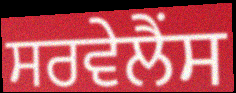
ਸਰਵੇਲੈਂਸ